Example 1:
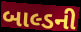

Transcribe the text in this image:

બાલ્ડની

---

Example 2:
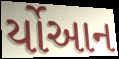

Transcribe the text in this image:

ર્યોઆન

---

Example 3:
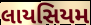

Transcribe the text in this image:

લાયસિયમ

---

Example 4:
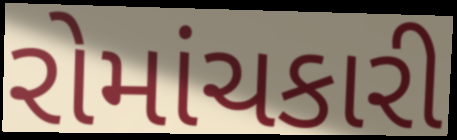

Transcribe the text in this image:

રોમાંચકારી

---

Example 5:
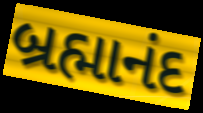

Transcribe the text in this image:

બ્રહ્માનંદ